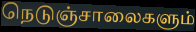
நெடுஞ்சாலைகளும்